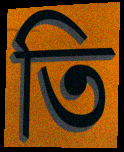
তি